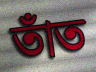
তাঁত